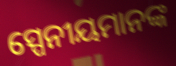
ସ୍ପେନୀୟମାନଙ୍କ